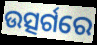
ଉତ୍ସର୍ଗରେ